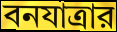
বনযাত্রার